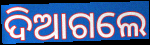
ଦିଆଗଲେ